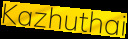
Kazhuthai